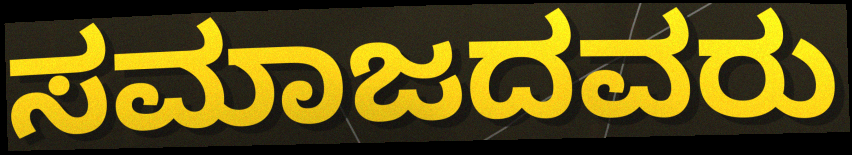
ಸಮಾಜದವರು